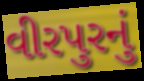
વીરપુરનું